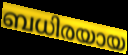
ബധിരയായ